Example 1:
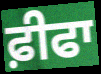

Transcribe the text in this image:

ਫ਼ੀਫਾ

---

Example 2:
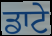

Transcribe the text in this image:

ਡਾਟੇ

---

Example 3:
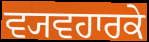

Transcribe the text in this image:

ਵ੍ਯਵਹਾਰਕੇ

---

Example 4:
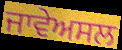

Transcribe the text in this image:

ਜਾਵੇਅਸਲ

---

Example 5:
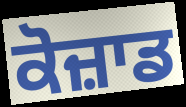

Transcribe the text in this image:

ਕੋਜ਼ਾਡ